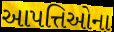
આપત્તિઓના